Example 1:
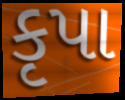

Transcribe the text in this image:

કૃપા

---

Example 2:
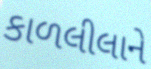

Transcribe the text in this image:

કાળલીલાને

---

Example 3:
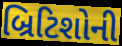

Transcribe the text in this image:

બ્રિટિશોની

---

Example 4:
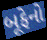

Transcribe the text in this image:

બૂફેનો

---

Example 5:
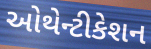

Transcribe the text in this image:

ઓથેન્ટીકેશન